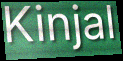
Kinjal